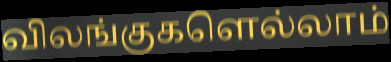
விலங்குகளெல்லாம்